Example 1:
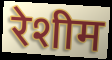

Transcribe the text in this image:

रेशीम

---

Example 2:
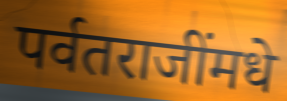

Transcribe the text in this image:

पर्वतराजींमधे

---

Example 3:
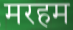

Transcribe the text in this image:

मरहम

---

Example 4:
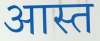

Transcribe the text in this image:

आस्त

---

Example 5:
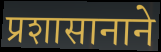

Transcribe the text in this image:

प्रशासानाने